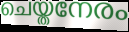
ചെയ്തനേരം